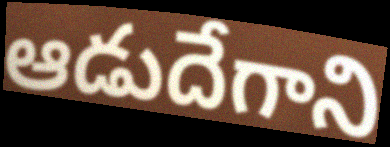
ఆడుదేగాని